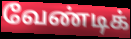
வேண்டிக்